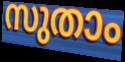
സുതാം